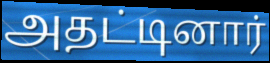
அதட்டினார்